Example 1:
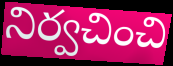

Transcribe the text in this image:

నిర్వచించి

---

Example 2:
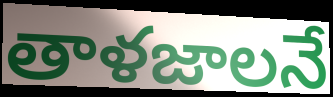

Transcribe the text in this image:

తాళజాలనే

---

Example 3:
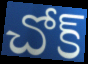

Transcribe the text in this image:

చోక్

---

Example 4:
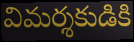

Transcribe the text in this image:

విమర్శకుడికి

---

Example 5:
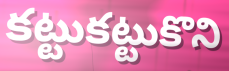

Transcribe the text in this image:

కట్టుకట్టుకొని